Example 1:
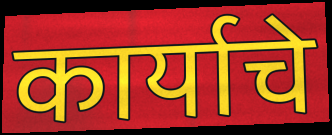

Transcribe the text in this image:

कार्याचे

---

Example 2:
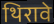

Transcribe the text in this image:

थिरावे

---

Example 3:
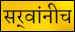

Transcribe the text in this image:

सर्वांनीच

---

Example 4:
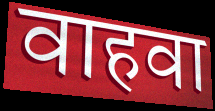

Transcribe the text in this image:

वाहवा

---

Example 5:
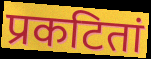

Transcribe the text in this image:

प्रकटितां